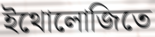
ইথোলোজিতে